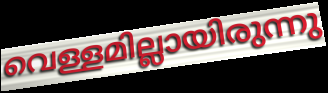
വെള്ളമില്ലായിരുന്നു